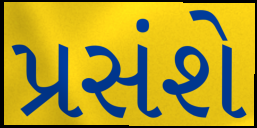
પ્રસંશે